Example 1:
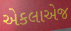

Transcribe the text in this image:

એકલાએજ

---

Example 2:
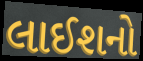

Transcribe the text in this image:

લાઈશનો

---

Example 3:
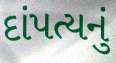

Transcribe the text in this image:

દાંપત્યનું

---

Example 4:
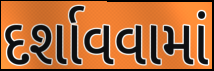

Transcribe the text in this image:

દર્શાવવામાં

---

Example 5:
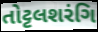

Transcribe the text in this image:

તોટ્ટલશરંગિ